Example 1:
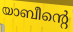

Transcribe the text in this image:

യാബീന്റെ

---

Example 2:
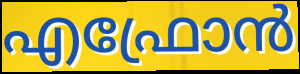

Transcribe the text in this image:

എഫ്രോൻ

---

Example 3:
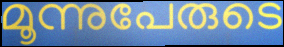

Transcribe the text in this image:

മൂന്നുപേരുടെ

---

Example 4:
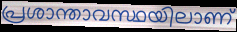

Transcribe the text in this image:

പ്രശാന്താവസ്ഥയിലാണ്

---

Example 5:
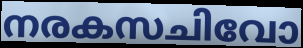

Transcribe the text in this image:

നരകസചിവോ